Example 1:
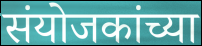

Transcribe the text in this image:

संयोजकांच्या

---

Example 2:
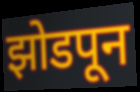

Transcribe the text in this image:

झोडपून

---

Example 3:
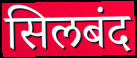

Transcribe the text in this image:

सिलबंद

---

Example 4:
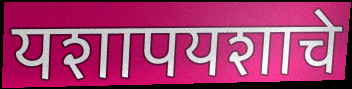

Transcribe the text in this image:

यशापयशाचे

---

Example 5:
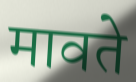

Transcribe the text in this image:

मावते